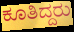
ಕೂತಿದ್ದರು